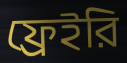
ফ্রেইরি